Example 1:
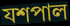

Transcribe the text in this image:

যশপাল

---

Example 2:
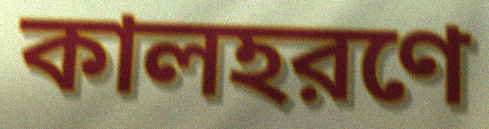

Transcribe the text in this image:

কালহরণে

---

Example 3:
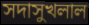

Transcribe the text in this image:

সদাসুখলাল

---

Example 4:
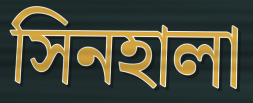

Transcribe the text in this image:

সিনহালা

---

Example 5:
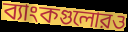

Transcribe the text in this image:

ব্যাংকগুলোরও